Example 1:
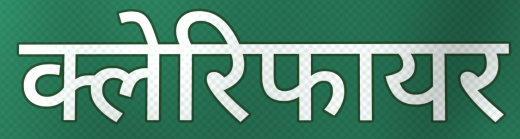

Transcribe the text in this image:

क्लेरिफायर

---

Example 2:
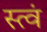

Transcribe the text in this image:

स्त्वं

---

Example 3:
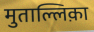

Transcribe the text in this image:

मुताल्लिक़ा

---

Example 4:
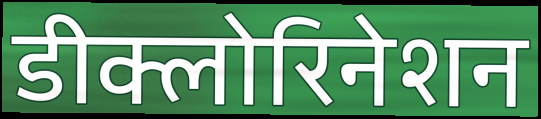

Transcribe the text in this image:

डीक्लोरिनेशन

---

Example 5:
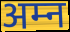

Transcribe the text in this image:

अम्न